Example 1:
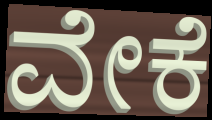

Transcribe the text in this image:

ವೇಕೆ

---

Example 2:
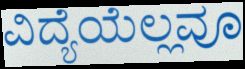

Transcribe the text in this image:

ವಿದ್ಯೆಯೆಲ್ಲವೂ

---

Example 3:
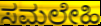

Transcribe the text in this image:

ಸಮಲೇಹಿ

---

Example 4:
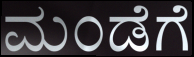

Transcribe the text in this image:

ಮಂಡೆಗೆ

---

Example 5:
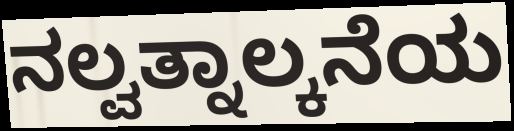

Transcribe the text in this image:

ನಲ್ವತ್ನಾಲ್ಕನೆಯ